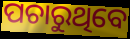
ପଚାରୁଥିବେ